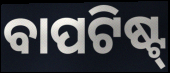
ବାପଟିଷ୍ଟ୍